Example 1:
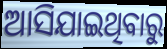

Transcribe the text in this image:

ଆସିଯାଇଥିବାରୁ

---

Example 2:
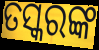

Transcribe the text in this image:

ତସ୍କରଙ୍କ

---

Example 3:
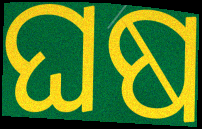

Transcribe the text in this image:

ଘଷ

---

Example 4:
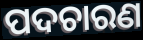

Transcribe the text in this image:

ପଦଚାରଣ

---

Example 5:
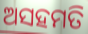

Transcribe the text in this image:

ଅସହମତି